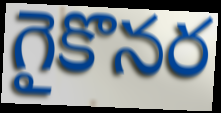
గైకొనర